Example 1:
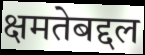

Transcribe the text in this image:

क्षमतेबद्दल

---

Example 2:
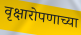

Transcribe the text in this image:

वृक्षारोपणाच्या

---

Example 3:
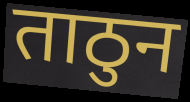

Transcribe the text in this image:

ताठुन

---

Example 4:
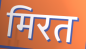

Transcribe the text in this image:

मिरत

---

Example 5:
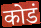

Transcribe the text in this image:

कोडं